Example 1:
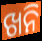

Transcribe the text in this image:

ଖନି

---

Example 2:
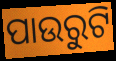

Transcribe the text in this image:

ପାଉରୁଟି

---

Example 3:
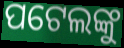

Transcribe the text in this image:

ପଟେଲଙ୍କୁ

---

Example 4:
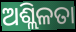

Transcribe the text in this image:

ଅଶ୍ଲିଳତା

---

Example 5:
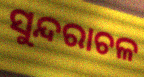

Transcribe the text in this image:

ସୁନ୍ଦରାଚଳ